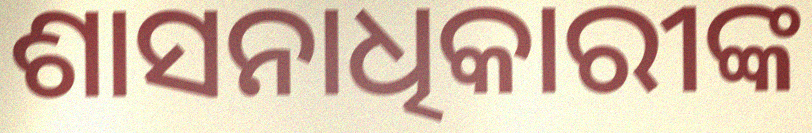
ଶାସନାଧିକାରୀଙ୍କ